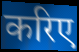
करिए